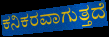
ಕನಿಕರವಾಗುತ್ತದೆ